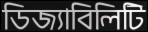
ডিজ্যাবিলিটি